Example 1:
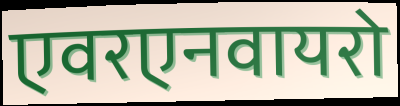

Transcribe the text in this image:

एवरएनवायरो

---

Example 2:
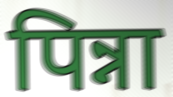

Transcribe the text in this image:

पिन्ना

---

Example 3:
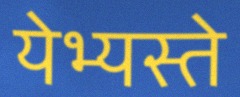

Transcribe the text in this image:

येभ्यस्ते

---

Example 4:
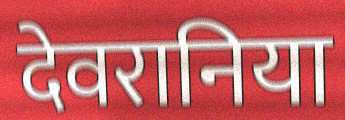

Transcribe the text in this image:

देवरानिया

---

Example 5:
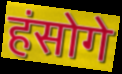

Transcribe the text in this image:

हंसोगे